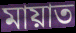
মায়াত